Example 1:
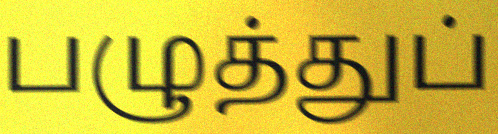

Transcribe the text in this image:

பழுத்துப்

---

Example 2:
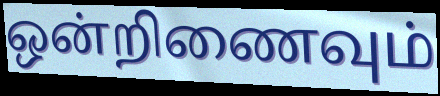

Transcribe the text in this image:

ஒன்றிணைவும்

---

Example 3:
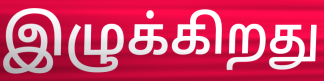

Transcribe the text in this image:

இழுக்கிறது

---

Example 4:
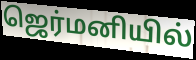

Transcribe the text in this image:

ஜெர்மனியில்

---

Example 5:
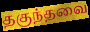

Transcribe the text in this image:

தகுந்தவை